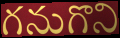
గనుగొని